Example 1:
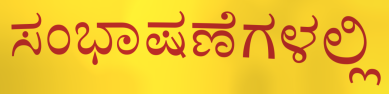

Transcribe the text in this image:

ಸಂಭಾಷಣೆಗಳಲ್ಲಿ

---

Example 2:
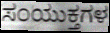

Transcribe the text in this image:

ಸಂಯುಕ್ತಗಳ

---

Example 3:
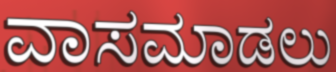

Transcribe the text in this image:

ವಾಸಮಾಡಲು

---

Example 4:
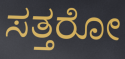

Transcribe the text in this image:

ಸತ್ತರೋ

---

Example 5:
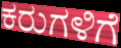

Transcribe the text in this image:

ಕರುಗಳಿಗೆ